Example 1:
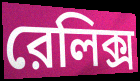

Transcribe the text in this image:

রেলিক্স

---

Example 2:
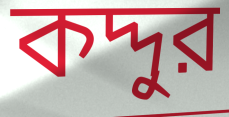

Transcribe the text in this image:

কদ্দুর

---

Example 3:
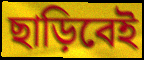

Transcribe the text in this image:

ছাড়িবেই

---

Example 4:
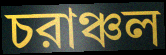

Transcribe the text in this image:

চরাঞ্চল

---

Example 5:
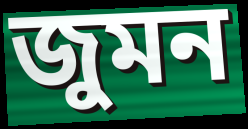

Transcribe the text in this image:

জুমন